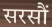
सरसौं